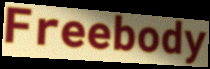
Freebody